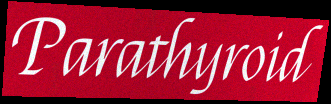
Parathyroid